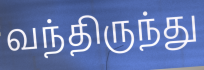
வந்திருந்து